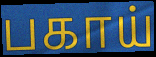
பகாய்